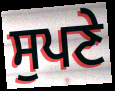
ਸੁਪਣੇ